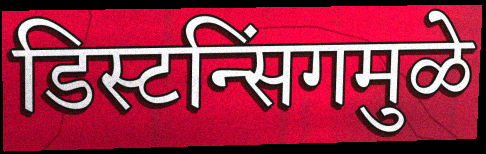
डिस्टन्सिंगमुळे